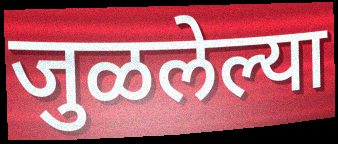
जुळलेल्या